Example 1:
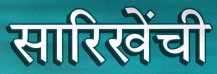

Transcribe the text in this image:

सारिखेंची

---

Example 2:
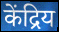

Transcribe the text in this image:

केंद्रिय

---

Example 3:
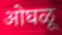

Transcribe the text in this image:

ओघळू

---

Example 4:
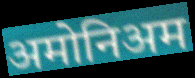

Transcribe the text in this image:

अमोनिअम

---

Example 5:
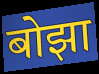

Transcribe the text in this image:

बोझा